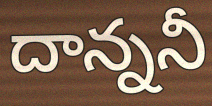
దాన్ననీ